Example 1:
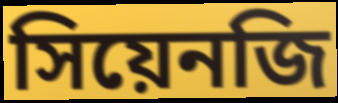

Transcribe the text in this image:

সিয়েনজি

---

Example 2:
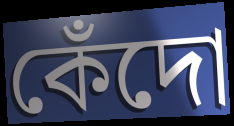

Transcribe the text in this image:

কেঁদো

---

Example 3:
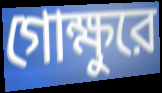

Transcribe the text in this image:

গোক্ষুরে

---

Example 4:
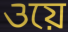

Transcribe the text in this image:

ওয়ে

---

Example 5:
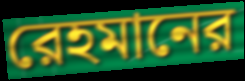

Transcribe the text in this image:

রেহমানের